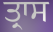
ਤ੍ਰਾਸ